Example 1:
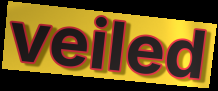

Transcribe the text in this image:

veiled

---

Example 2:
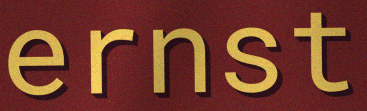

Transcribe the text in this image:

ernst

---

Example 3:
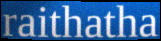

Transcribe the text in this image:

raithatha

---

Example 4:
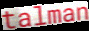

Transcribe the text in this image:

talman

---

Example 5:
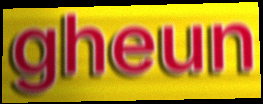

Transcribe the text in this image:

gheun